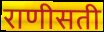
राणीसती